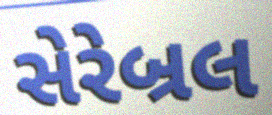
સેરેબ્રલ